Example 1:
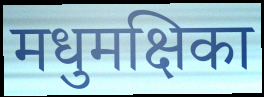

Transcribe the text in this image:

मधुमक्षिका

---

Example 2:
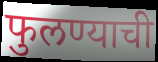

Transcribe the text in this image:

फुलण्याची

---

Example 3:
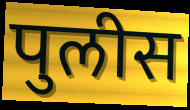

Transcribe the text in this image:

पुलीस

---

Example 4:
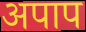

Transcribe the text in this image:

अपाप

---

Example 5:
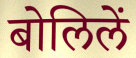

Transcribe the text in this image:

बोलिलें